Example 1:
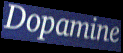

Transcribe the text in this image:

Dopamine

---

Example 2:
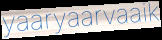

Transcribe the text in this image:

yaaryaarvaaik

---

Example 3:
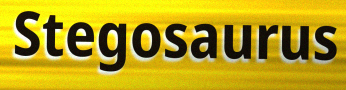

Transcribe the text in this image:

Stegosaurus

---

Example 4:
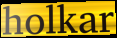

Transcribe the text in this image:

holkar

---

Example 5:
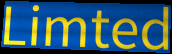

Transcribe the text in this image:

Limted